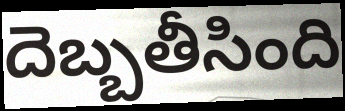
దెబ్బతీసింది